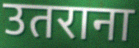
उतराना